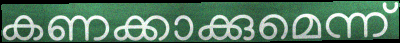
കണക്കാക്കുമെന്ന്